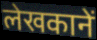
लेखकानें